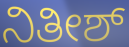
ನಿತೀಶ್